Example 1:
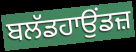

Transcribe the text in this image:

ਬਲੱਡਹਾਉਂਡਜ਼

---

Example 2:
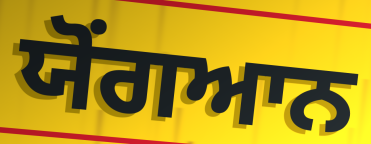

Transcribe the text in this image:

ਯੋਂਗਆਨ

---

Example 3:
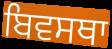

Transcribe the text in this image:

ਬਿਵਸਥਾ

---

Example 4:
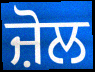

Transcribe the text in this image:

ਜ਼ੋਲ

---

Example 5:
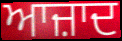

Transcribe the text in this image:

ਆਜ਼ਾਦ